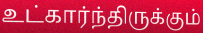
உட்கார்ந்திருக்கும்